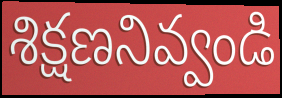
శిక్షణనివ్వండి